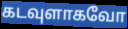
கடவுளாகவோ